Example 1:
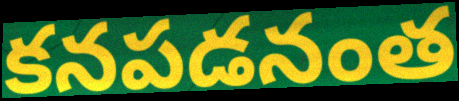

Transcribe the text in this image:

కనపడనంత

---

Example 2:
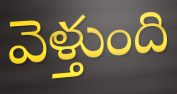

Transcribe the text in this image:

వెళ్తుంది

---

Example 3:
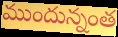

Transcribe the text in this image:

ముందున్నంత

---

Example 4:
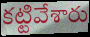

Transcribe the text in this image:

కట్టివేశారు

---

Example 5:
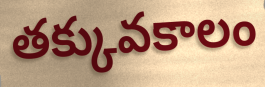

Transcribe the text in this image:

తక్కువకాలం